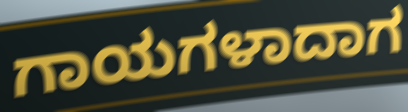
ಗಾಯಗಳಾದಾಗ